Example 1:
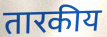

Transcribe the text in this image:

तारकीय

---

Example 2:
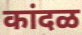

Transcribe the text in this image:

कांदळ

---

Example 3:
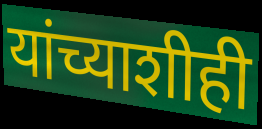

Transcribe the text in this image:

यांच्याशीही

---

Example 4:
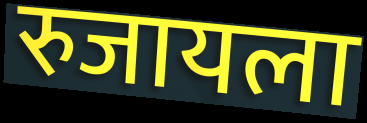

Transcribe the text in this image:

रुजायला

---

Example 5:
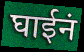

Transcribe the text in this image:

घाईनं